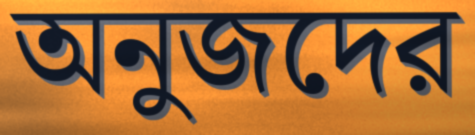
অনুজদের